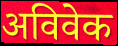
अविवेक